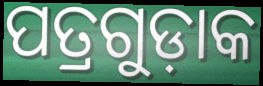
ପତ୍ରଗୁଡ଼ାକ